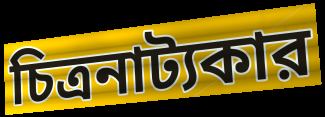
চিত্রনাট্যকার